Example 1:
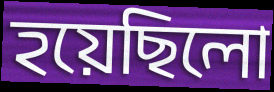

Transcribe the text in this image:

হয়েছিলো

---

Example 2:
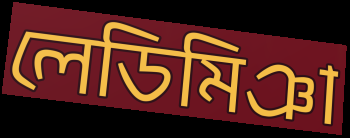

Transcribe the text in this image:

লেডিমিঞা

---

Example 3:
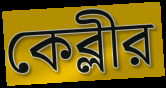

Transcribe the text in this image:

কেব্লীর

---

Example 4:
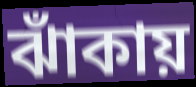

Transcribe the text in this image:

ঝাঁকায়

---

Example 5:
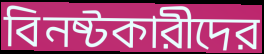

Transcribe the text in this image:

বিনষ্টকারীদের